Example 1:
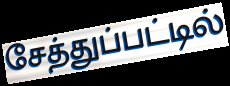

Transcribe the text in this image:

சேத்துப்பட்டில்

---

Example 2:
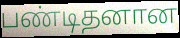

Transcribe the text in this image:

பண்டிதனான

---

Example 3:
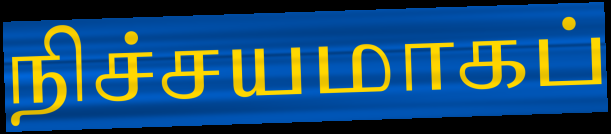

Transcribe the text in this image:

நிச்சயமாகப்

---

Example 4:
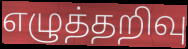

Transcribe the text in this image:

எழுத்தறிவு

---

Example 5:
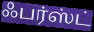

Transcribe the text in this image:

ஃபர்ஸ்ட்